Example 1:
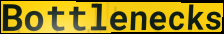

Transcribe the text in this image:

Bottlenecks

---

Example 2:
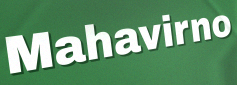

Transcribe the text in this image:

Mahavirno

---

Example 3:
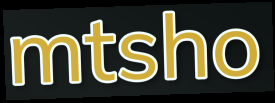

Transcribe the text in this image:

mtsho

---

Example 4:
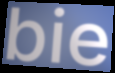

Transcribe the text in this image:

bie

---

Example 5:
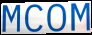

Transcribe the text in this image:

MCOM